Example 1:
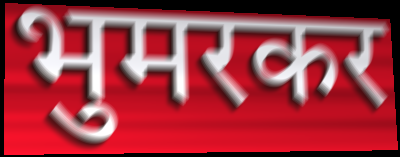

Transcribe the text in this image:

भुमरकर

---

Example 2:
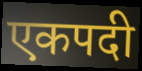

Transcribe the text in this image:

एकपदी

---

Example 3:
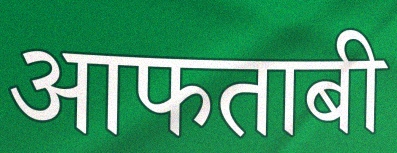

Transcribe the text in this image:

आफताबी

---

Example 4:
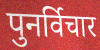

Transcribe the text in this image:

पुनर्विचार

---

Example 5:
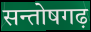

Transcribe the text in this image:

सन्तोषगढ़